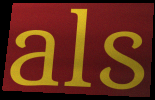
als